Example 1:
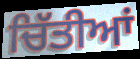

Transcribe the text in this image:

ਚਿੱਤੀਆਂ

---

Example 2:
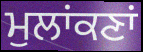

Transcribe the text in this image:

ਮੁਲਾਂਕਣਾਂ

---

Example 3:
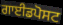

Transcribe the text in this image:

ਗਾਈਡਪੋਸਟ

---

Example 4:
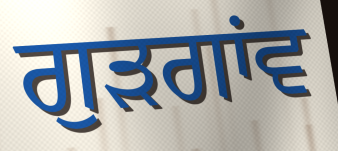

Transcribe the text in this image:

ਗੁਡ਼ਗਾਂਵ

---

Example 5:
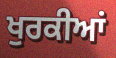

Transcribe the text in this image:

ਖੁਰਕੀਆਂ